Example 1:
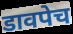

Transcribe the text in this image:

डावपेच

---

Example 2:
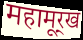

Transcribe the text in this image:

महामूर्ख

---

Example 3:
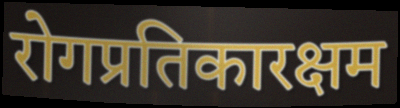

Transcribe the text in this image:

रोगप्रतिकारक्षम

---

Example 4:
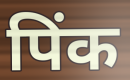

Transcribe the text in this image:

पिंक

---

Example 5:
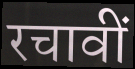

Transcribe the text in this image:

रचावीं